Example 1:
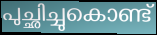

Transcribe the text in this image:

പുച്ഛിച്ചുകൊണ്ട്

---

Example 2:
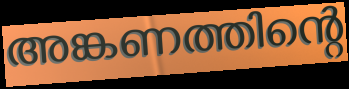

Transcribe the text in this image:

അങ്കണത്തിന്റെ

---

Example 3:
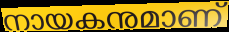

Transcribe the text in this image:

നായകനുമാണ്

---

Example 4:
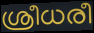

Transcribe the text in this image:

ശ്രീധരീ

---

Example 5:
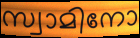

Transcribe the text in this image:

സ്വാമിനോ